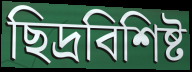
ছিদ্রবিশিষ্ট